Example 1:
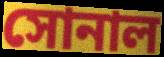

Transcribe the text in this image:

সোনাল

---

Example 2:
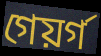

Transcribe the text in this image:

গেয়ৰ্গ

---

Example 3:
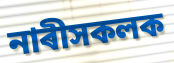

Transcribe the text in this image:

নাৰীসকলক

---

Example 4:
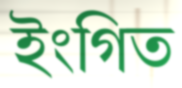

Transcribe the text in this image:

ইংগিত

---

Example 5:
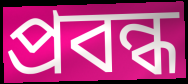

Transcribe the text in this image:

প্ৰবন্ধ